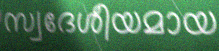
സ്വദേശീയമായ